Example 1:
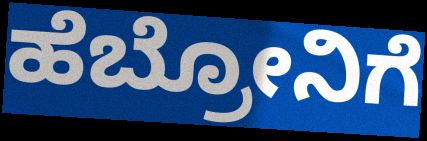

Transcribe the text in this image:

ಹೆಬ್ರೋನಿಗೆ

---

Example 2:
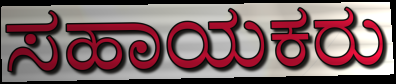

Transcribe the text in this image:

ಸಹಾಯಕರು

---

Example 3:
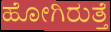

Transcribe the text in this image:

ಹೋಗಿರುತ್ತೆ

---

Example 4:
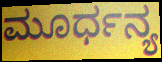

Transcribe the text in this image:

ಮೂರ್ಧನ್ಯ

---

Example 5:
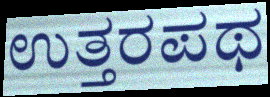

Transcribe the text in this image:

ಉತ್ತರಪಥ